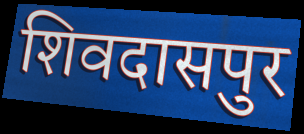
शिवदासपुर